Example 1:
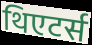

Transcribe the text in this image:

थिएटर्स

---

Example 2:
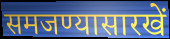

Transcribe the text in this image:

समजण्यासारखें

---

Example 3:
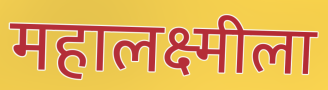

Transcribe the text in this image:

महालक्ष्मीला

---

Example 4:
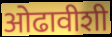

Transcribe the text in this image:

ओढावीशी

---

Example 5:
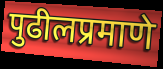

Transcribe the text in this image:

पुढीलप्रमाणे